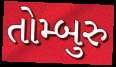
તોમ્બુરુ